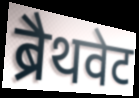
ब्रैथवेट